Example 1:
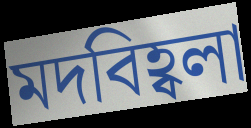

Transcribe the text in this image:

মদবিহ্বলা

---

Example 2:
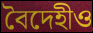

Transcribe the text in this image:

বৈদেহীও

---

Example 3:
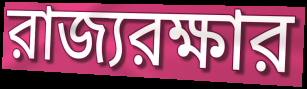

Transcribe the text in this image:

রাজ্যরক্ষার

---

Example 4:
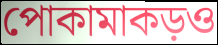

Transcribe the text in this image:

পোকামাকড়ও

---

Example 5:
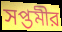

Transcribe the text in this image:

সপ্তমীর